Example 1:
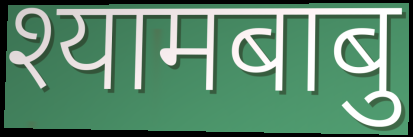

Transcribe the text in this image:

श्यामबाबु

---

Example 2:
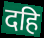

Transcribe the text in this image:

दहि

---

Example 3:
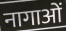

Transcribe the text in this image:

नागाओं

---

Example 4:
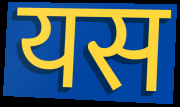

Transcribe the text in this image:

यस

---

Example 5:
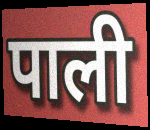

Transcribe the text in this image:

पाली